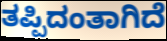
ತಪ್ಪಿದಂತಾಗಿದೆ